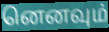
னெனவும்